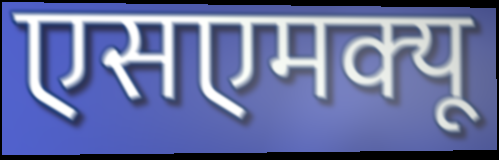
एसएमक्यू